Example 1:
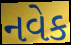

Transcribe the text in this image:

નવેક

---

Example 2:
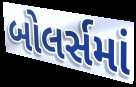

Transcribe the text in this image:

બોલર્સમાં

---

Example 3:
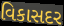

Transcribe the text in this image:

વિકાસદર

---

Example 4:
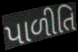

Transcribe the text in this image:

પાળીતિ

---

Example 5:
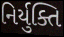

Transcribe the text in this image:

નિર્યુક્તિ